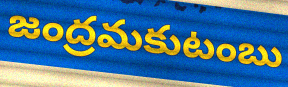
జంద్రమకుటంబు